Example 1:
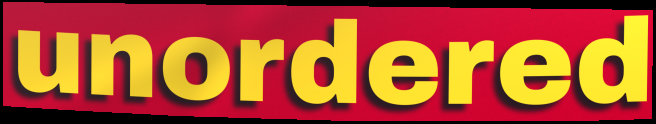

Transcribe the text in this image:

unordered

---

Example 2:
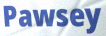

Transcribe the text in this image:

Pawsey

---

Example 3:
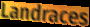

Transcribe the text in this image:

Landraces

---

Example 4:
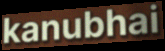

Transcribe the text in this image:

kanubhai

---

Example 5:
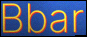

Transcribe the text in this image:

Bbar